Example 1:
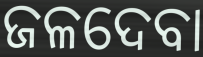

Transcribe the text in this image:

ଜଳଦେବା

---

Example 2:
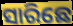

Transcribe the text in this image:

ସାରିଛେ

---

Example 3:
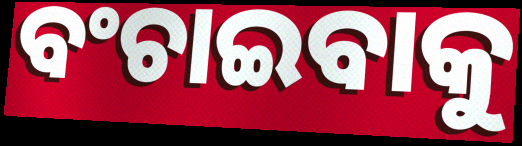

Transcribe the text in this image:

ବଂଚାଇବାକୁ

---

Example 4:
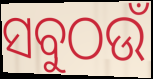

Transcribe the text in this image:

ସବୁଠଉଁ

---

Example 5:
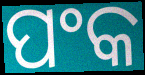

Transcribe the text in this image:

ପଂକ